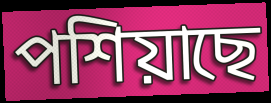
পশিয়াছে